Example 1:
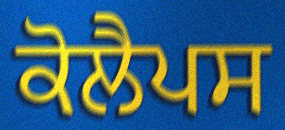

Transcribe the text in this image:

ਕੋਲੈਪਸ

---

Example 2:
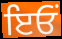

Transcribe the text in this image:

ਇਓਂ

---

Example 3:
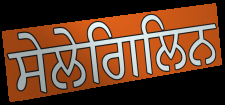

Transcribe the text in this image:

ਸੇਲੇਗਿਲਿਨ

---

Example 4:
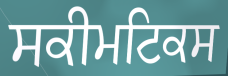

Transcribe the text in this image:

ਸਕੀਮਟਿਕਸ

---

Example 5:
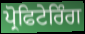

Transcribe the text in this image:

ਪ੍ਰੋਫਿਟੇਰਿੰਗ